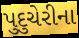
પુદુચેરીના